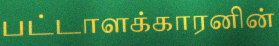
பட்டாளக்காரனின்